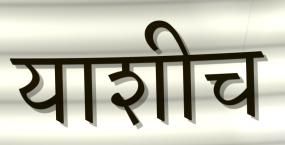
याशीच